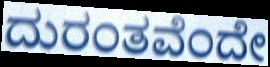
ದುರಂತವೆಂದೇ